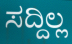
ಸದ್ದಿಲ್ಲ